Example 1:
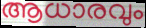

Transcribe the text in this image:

ആധാരവും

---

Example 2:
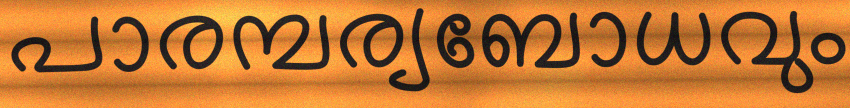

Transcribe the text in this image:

പാരമ്പര്യബോധവും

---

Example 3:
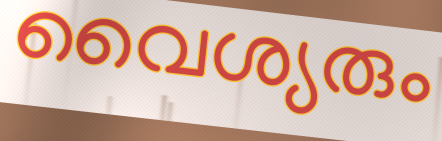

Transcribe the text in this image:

വൈശ്യരും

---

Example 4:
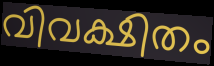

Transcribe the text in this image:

വിവക്ഷിതം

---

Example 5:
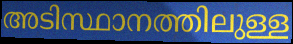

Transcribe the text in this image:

അടിസ്ഥാനത്തിലുള്ള